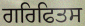
ਗਰਿਫਿਤਸ